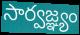
సార్వజ్ఞ్యం